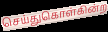
செய்துகொள்கின்ற